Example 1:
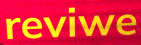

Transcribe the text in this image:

reviwe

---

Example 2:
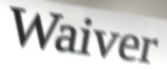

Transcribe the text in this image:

Waiver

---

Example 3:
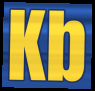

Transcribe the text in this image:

Kb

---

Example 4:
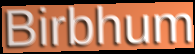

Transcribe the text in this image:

Birbhum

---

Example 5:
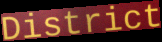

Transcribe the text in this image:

District